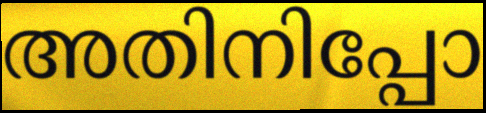
അതിനിപ്പോ